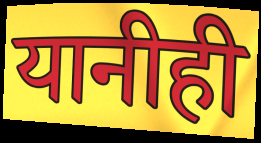
यानीही